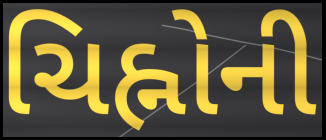
ચિહ્નોની